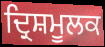
ਦ੍ਰਿਸ਼ਮੂਲਕ